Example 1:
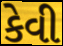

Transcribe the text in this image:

કેવી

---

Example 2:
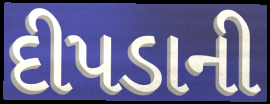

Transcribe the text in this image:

દીપડાની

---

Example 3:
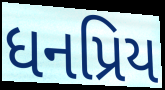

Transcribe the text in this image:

ધનપ્રિય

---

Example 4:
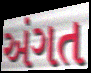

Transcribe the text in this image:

અંગત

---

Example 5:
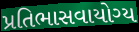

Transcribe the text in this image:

પ્રતિભાસવાયોગ્ય